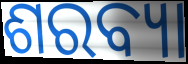
ଶରବ୍ୟା